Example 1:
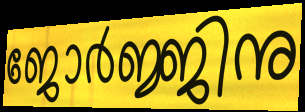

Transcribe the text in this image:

ജോർജ്ജിനു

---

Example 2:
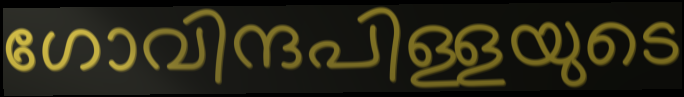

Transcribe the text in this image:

ഗോവിന്ദപിള്ളയുടെ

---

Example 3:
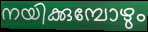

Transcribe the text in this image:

നയിക്കുമ്പോഴും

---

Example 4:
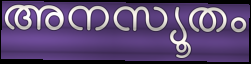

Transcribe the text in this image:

അനസ്യൂതം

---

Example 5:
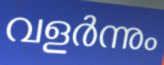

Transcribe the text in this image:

വളർന്നും